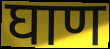
घाण